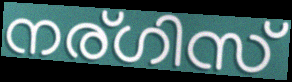
നര്ഗിസ്